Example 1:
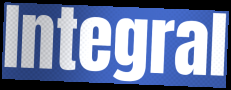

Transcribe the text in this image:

Integral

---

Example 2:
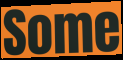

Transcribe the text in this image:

Some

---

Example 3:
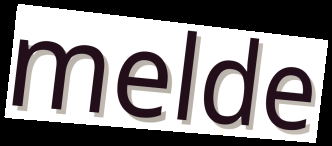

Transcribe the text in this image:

melde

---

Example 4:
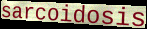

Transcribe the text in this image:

sarcoidosis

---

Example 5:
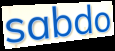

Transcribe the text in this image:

sabdo